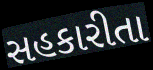
સહકારીતા